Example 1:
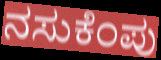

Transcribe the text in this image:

ನಸುಕೆಂಪು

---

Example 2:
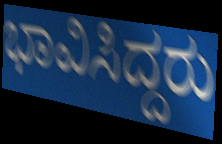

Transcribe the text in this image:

ಭಾವಿಸಿದ್ದರು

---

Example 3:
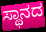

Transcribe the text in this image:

ಸ್ಥಾನದ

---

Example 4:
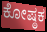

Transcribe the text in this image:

ಕೋಷ್ಠಕ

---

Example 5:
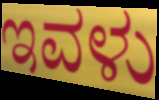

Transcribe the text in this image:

ಇವಳು